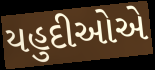
યહુદીઓએ